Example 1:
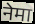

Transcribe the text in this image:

नेमा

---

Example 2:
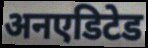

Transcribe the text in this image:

अनएडिटेड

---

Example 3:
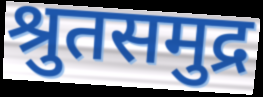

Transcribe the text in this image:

श्रुतसमुद्र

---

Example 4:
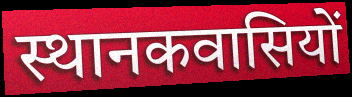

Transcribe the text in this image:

स्थानकवासियों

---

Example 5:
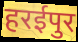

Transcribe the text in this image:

हरईपुर